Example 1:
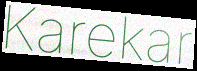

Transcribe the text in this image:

Karekar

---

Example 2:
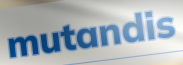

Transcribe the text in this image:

mutandis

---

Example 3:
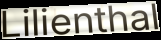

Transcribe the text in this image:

Lilienthal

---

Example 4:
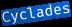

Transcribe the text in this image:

Cyclades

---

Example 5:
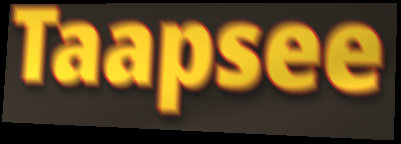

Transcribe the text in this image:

Taapsee